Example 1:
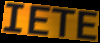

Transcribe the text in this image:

IETE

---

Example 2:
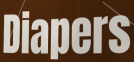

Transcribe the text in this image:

Diapers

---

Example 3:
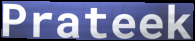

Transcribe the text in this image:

Prateek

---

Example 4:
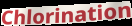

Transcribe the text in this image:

Chlorination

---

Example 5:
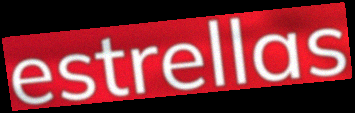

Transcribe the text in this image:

estrellas